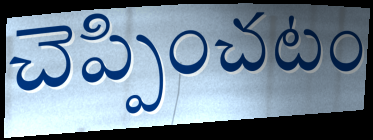
చెప్పించటం